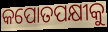
କପୋତପକ୍ଷୀକୁ